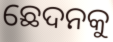
ଛେଦନକୁ